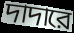
দাদারে